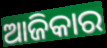
ଆଜିକାର